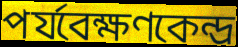
পর্যবেক্ষণকেন্দ্র